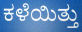
ಕಳೆಯಿತ್ತು